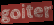
goiter